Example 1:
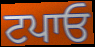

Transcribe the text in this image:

ਟਪਾਓ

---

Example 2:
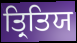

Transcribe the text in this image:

ਤ੍ਰਿਤਿਯ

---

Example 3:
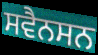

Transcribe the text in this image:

ਸਵੈਨਸਨ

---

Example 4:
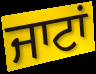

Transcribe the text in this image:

ਜਾਟਾਂ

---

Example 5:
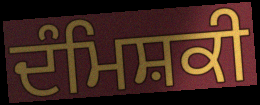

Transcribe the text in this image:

ਦੰਮਿਸ਼ਕੀ